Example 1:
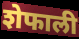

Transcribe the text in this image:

शेफाली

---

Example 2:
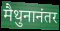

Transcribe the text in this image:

मैथुनानंतर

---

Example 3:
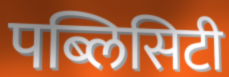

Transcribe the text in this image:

पब्लिसिटी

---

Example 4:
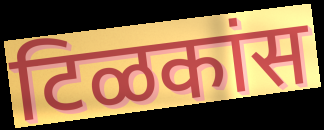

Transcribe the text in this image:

टिळकांस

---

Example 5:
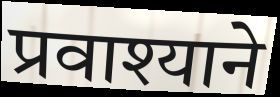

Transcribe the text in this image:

प्रवाश्याने